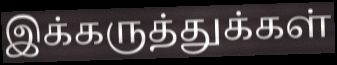
இக்கருத்துக்கள்